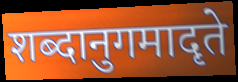
शब्दानुगमादृते